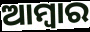
ଆମ୍ବାର